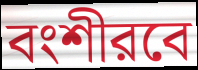
বংশীরবে